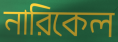
নারিকেল